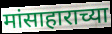
मांसाहाराच्या